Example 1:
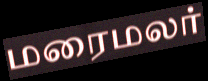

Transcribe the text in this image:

மரைமலர்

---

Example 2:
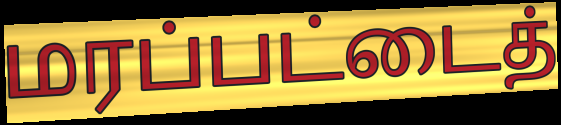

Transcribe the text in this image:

மரப்பட்டைத்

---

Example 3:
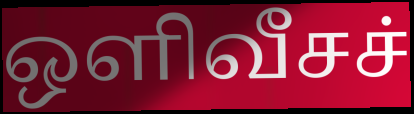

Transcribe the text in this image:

ஒளிவீசச்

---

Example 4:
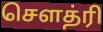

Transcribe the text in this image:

சௌத்ரி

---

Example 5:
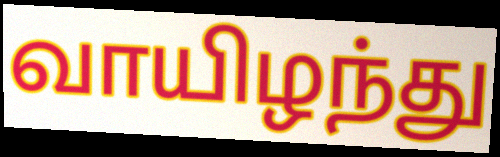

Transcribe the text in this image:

வாயிழந்து